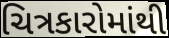
ચિત્રકારોમાંથી